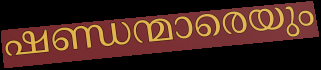
ഷണ്ഡന്മാരെയും